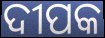
ଦୀପକ